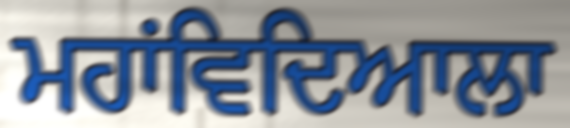
ਮਹਾਂਵਿਦਿਆਲਾ